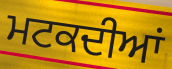
ਮਟਕਦੀਆਂ